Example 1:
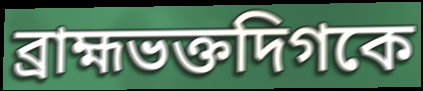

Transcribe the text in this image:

ব্রাহ্মভক্তদিগকে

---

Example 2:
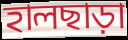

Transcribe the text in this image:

হালছাড়া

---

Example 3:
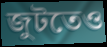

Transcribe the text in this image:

জুটতেও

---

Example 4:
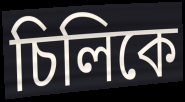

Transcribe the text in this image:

চিলিকে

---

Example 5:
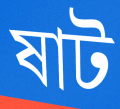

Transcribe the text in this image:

ষাট